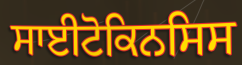
ਸਾਈਟੋਕਿਨਸਿਸ